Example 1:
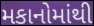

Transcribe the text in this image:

મકાનોમાંથી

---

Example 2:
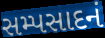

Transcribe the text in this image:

સમ્પસાદનં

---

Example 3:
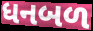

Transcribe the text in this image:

ધનબળ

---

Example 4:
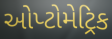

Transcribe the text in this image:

ઓપ્ટોમેટ્રિક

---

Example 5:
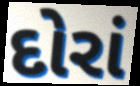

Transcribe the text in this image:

દોરાં